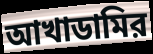
আখাডামির